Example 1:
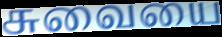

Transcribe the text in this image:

சுவையை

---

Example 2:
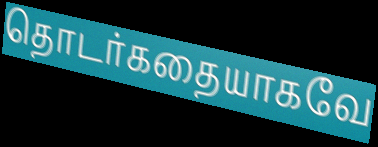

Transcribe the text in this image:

தொடர்கதையாகவே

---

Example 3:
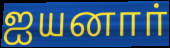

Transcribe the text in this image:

ஐயனார்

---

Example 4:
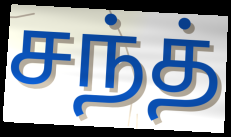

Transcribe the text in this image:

சந்த்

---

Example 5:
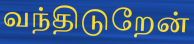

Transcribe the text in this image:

வந்திடுறேன்